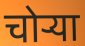
चोऱ्या